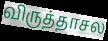
விருத்தாசல